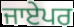
ਜਾਏਪਰ